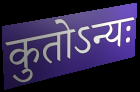
कुतोऽन्यः